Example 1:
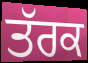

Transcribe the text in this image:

ਤੱਰਕ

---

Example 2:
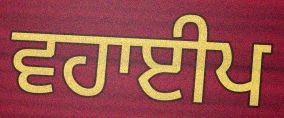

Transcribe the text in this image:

ਵਹਾਈਪ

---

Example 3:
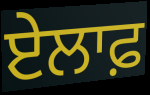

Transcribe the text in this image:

ਏਲਾਫ਼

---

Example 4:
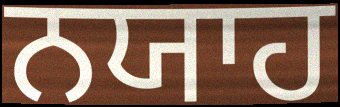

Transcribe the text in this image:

ਨਯਾਹ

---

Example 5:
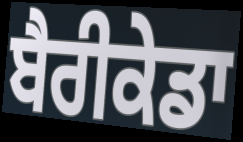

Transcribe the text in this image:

ਬੈਰੀਕੇਡਾ